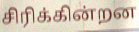
சிரிக்கின்றன